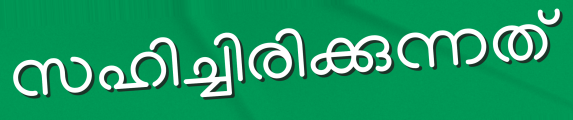
സഹിച്ചിരിക്കുന്നത്